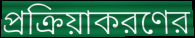
প্রক্রিয়াকরণের